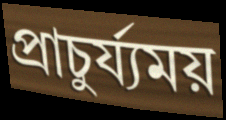
প্ৰাচুৰ্য্যময়